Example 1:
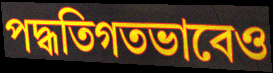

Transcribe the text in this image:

পদ্ধতিগতভাবেও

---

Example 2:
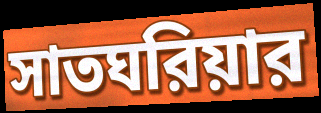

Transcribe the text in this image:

সাতঘরিয়ার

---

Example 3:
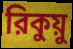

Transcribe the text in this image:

রিকুয়ু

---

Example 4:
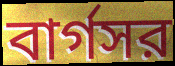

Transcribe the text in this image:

বার্গসর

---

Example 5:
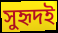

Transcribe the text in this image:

সুহৃদই